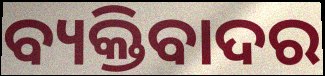
ବ୍ୟକ୍ତିବାଦର